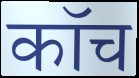
कॉच